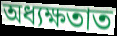
অধ্যক্ষতাত